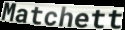
Matchett